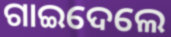
ଗାଇଦେଲେ